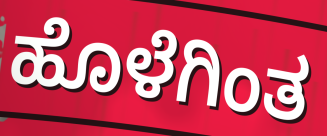
ಹೊಳೆಗಿಂತ